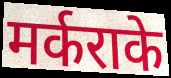
मर्कराके